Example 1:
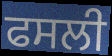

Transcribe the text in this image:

ਫਸਲੀ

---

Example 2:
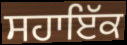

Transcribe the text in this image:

ਸਹਾਇੱਕ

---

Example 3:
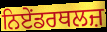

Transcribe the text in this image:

ਨਿਏਂਡਰਥਲਜ਼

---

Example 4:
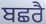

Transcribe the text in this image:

ਬਛਰੈ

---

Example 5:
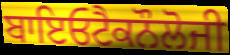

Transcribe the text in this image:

ਬਾਇਓਟੈਕਨੌਲੋਜੀ